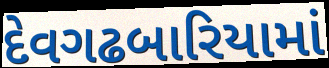
દેવગઢબારિયામાં